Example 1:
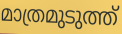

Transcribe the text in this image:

മാത്രമുടുത്ത്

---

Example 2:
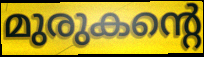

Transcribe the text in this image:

മുരുകന്റെ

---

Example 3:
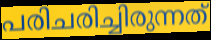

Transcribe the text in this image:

പരിചരിച്ചിരുന്നത്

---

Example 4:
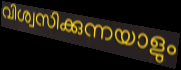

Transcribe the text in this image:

വിശ്വസിക്കുന്നയാളും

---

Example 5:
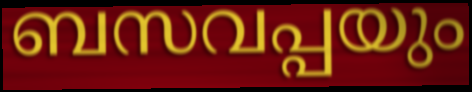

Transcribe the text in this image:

ബസവപ്പയും